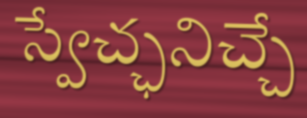
స్వేచ్ఛనిచ్చే